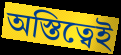
অস্তিত্বেই